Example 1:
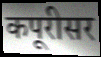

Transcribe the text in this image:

कपूरीसर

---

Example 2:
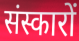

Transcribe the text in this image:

संस्कारों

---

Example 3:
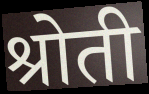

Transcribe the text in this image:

श्रोती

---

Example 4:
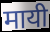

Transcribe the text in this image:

मायी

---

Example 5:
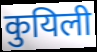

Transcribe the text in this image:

कुयिली